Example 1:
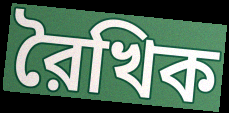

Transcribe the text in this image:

রৈখিক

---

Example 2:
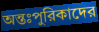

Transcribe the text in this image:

অন্তঃপুরিকাদের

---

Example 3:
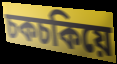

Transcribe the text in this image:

চকচকিয়ে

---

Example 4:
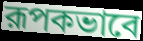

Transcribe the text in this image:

রূপকভাবে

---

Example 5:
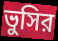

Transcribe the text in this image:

ভুসির